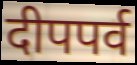
दीपपर्व